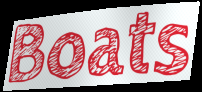
Boats